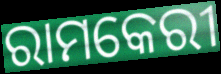
ରାମକେରୀ